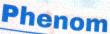
Phenom